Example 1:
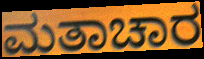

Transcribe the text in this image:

ಮತಾಚಾರ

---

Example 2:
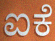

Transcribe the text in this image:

ಐಕೆ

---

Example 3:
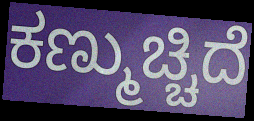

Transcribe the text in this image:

ಕಣ್ಮುಚ್ಚಿದೆ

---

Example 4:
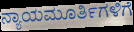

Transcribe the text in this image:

ನ್ಯಾಯಮೂರ್ತಿಗಳಿಗೆ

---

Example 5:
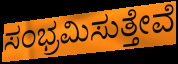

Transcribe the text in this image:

ಸಂಭ್ರಮಿಸುತ್ತೇವೆ